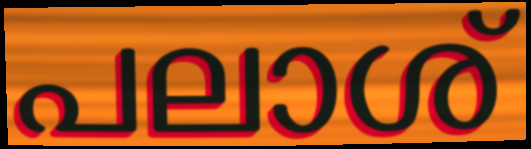
പലാശ്